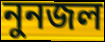
নুনজল